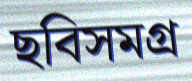
ছবিসমগ্র